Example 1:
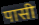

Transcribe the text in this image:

पासी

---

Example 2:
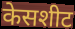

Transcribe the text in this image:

केसशीट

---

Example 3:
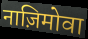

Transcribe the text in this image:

नाज़िमोवा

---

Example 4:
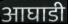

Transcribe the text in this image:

आघाडी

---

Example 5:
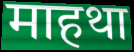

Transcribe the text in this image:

माहथा